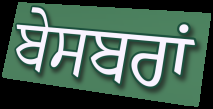
ਬੇਸਬਰਾਂ